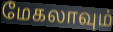
மேகலாவும்